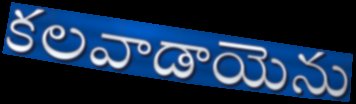
కలవాడాయెను